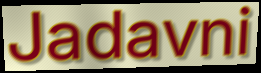
Jadavni